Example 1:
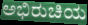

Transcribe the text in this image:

ಅಭಿರುಚಿಯ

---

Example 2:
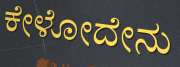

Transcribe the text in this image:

ಕೇಳೋದೇನು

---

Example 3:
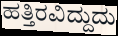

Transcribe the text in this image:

ಹತ್ತಿರವಿದ್ದುದು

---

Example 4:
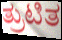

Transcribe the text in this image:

ತ್ರುಟಿತ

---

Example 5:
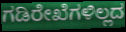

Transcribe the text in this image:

ಗಡಿರೇಖೆಗಳಿಲ್ಲದ